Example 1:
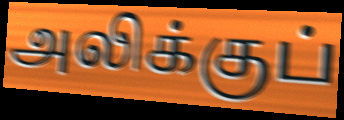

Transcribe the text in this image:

அலிக்குப்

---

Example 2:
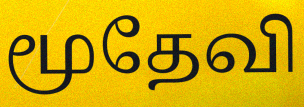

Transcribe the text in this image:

மூதேவி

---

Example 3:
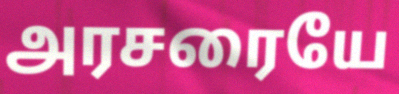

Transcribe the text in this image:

அரசரையே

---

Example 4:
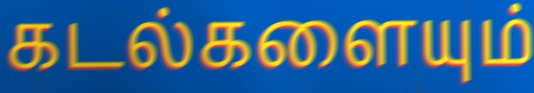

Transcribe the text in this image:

கடல்களையும்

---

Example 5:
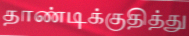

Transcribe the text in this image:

தாண்டிக்குதித்து